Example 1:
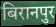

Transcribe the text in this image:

बिरानपुर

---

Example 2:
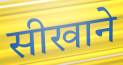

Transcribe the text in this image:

सीखाने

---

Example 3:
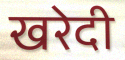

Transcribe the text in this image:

खरेदी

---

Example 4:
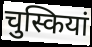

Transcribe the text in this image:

चुस्कियां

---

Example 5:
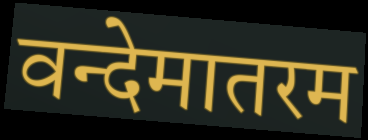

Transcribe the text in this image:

वन्देमातरम